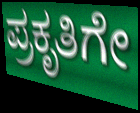
ಪ್ರಕೃತಿಗೇ